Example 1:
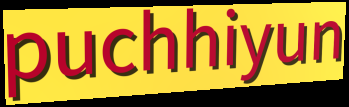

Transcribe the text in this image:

puchhiyun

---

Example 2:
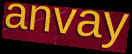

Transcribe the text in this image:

anvay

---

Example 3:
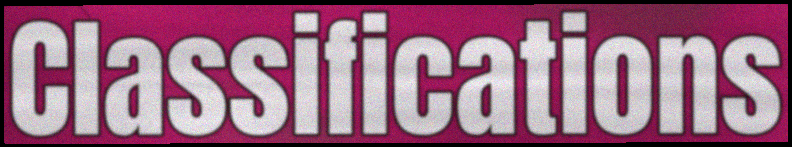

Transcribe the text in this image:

Classifications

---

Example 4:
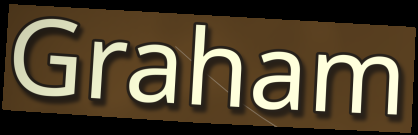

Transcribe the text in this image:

Graham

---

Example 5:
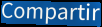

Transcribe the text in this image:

Compartir